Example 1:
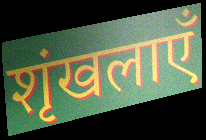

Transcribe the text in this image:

शृंखलाएँ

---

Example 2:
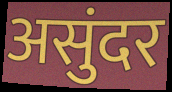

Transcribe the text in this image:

असुंदर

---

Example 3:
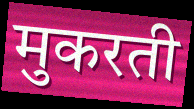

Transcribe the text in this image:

मुकरती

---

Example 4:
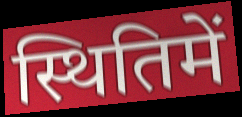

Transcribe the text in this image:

स्थितिमें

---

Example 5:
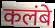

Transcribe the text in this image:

कलंबे